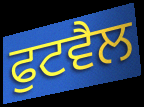
ਫੁਟਵੈਲ